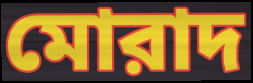
মোরাদ